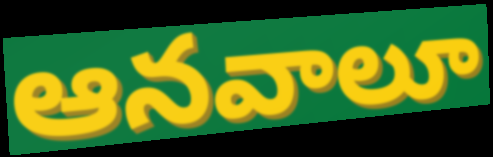
ఆనవాలూ